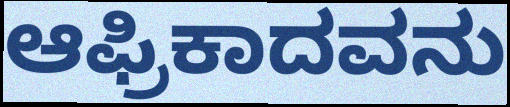
ಆಫ್ರಿಕಾದವನು